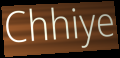
Chhiye